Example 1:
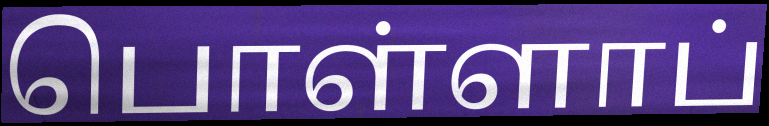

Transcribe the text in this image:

பொள்ளாப்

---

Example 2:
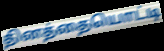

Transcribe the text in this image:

தினத்தையொட்டி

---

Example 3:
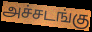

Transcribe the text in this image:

அச்சடங்கு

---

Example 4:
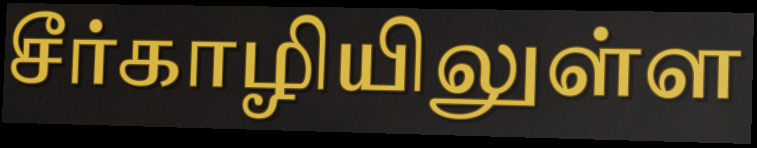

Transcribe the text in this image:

சீர்காழியிலுள்ள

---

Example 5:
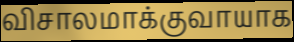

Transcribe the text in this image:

விசாலமாக்குவாயாக